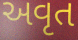
અવૃત